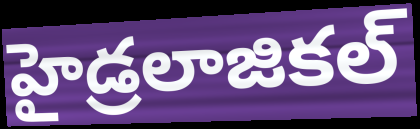
హైడ్రలాజికల్